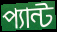
প্যান্ট